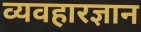
व्यवहारज्ञान